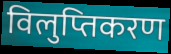
विलुप्तिकरण